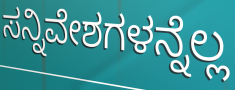
ಸನ್ನಿವೇಶಗಳನ್ನೆಲ್ಲ